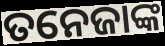
ତନେଜାଙ୍କ